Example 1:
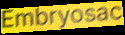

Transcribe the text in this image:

Embryosac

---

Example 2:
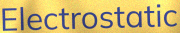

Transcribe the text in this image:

Electrostatic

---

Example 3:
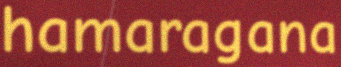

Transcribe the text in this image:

hamaragana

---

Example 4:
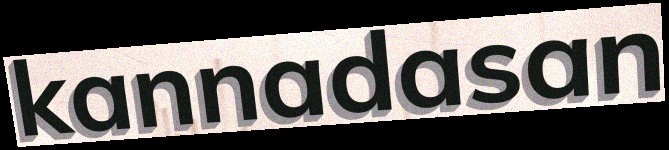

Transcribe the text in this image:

kannadasan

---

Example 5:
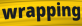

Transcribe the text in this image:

wrapping